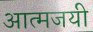
आत्मजयी